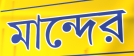
মান্দের